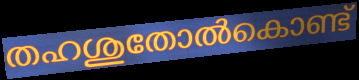
തഹശുതോൽകൊണ്ട്